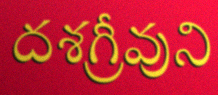
దశగ్రీవుని